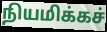
நியமிக்கச்